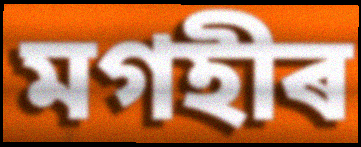
মগহীৰ